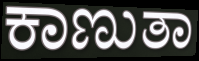
ಕಾಣುತಾ